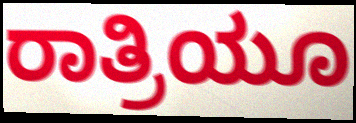
ರಾತ್ರಿಯೂ